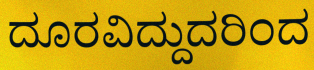
ದೂರವಿದ್ದುದರಿಂದ